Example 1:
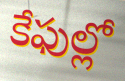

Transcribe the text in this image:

కేఫుల్లో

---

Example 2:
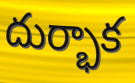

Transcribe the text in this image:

దుర్భాక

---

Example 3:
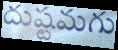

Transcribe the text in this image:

దుష్టమగు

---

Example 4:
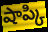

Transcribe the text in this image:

షాప్కి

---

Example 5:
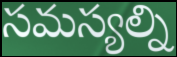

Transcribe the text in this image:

సమస్యల్ని